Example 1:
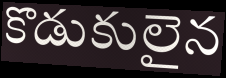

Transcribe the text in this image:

కొడుకులైన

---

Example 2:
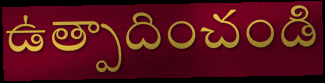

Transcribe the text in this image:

ఉత్పాదించండి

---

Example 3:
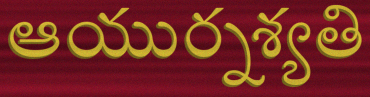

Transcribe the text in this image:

ఆయుర్నశ్యతి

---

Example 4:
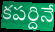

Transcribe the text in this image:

కపర్దినే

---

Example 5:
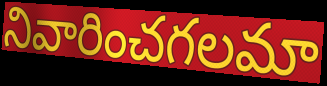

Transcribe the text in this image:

నివారించగలమా